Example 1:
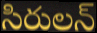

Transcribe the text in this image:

సిరులన్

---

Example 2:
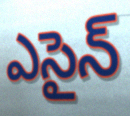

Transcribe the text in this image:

ఎసైన్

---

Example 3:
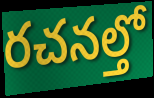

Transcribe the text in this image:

రచనల్తో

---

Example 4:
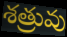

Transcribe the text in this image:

శత్రువు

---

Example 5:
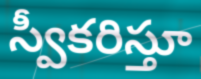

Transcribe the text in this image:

స్వీకరిస్తూ